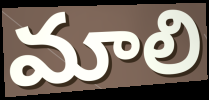
మాలి